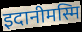
इदानीमस्मि